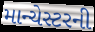
માન્ચેસ્ટરની